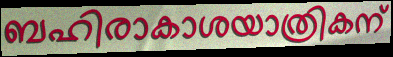
ബഹിരാകാശയാത്രികന്